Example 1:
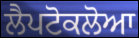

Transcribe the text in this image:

ਲੈਪਟੋਕਲੋਆ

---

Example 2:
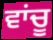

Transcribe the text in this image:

ਵਾਂਚੂ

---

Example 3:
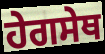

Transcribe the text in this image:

ਹੇਗਸੇਥ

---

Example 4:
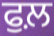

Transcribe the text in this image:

ਫੁਲ਼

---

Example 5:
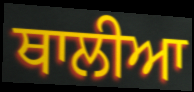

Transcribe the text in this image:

ਥਾਲੀਆ